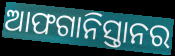
ଆଫଗାନିସ୍ତାନର